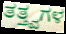
ತತ್ತ್ವಗಳ